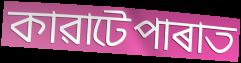
কাৱাটেপাৰাত